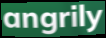
angrily